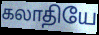
கலாதியே